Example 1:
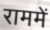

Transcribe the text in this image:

राममें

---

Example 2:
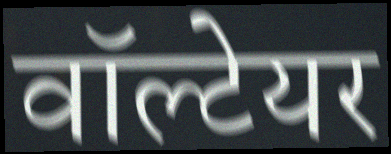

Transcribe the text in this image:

वॉल्टेयर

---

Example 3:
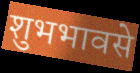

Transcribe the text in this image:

शुभभावसे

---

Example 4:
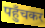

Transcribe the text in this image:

पहुँचकर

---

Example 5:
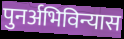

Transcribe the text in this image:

पुनर्अभिविन्यास